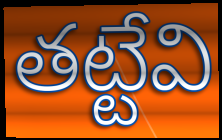
తట్టేవి